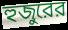
হুজুরের